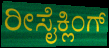
ರೀಸೈಕ್ಲಿಂಗ್